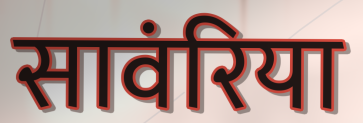
सावंरिया